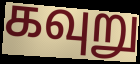
கவுறு